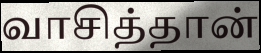
வாசித்தான்